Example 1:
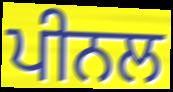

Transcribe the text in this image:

ਪੀਨਲ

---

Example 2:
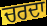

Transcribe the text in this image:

ਚਰਦਾ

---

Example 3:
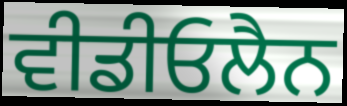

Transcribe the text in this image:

ਵੀਡੀਓਲੈਨ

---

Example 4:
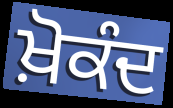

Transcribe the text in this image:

ਖ਼ੋਕੰਦ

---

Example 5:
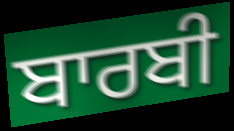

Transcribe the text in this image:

ਬਾਰਬੀ